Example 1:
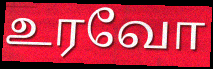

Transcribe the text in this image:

உரவோ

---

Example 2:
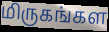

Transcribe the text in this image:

மிருகங்கள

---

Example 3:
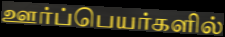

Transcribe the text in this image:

ஊர்ப்பெயர்களில்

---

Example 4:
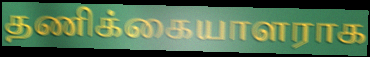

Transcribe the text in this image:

தணிக்கையாளராக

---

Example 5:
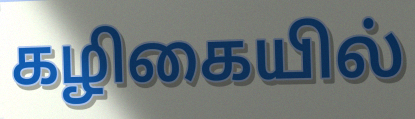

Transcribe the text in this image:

கழிகையில்